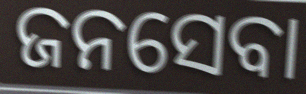
ଜନସେବା